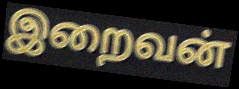
இறைவன்